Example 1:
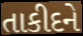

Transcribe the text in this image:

તાકીદને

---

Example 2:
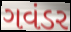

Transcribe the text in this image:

ગવંડર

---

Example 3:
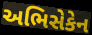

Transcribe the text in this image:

અભિસેકેન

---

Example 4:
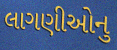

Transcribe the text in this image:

લાગણીઓનુ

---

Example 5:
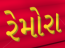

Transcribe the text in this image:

રેમોરા